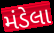
મંડેલા